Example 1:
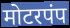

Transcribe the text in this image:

मोटरपंप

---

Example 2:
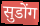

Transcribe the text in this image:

सुडोंग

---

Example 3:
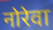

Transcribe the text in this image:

नोरेवा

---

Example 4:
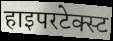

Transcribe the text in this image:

हाइपरटेक्स्ट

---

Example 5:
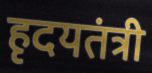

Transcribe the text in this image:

हृदयतंत्री